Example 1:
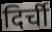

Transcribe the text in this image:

दिर्ची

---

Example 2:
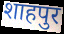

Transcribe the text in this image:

शाहपुर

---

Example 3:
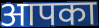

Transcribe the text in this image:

आपका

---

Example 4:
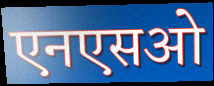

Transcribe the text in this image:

एनएसओ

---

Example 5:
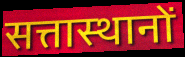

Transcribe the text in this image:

सत्तास्थानों